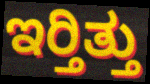
ಇರ್‍ತಿತ್ತು